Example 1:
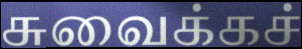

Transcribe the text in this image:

சுவைக்கச்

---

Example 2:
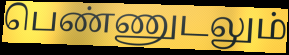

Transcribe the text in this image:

பெண்ணுடலும்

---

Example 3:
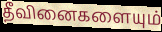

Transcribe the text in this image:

தீவினைகளையும்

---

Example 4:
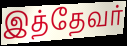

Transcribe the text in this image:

இத்தேவர்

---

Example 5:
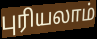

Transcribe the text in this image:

புரியலாம்